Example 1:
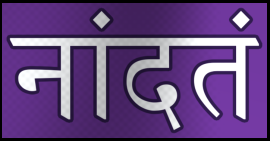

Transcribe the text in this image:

नांदतं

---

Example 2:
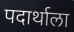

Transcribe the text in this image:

पदार्थाला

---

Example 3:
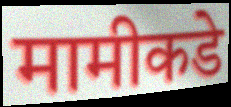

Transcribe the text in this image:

मामीकडे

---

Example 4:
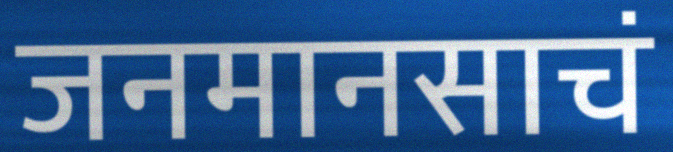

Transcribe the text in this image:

जनमानसाचं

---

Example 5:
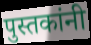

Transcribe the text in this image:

पुस्तकांनी